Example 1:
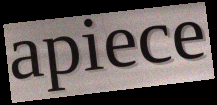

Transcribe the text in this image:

apiece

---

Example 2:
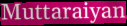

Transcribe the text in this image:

Muttaraiyan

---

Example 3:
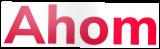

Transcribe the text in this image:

Ahom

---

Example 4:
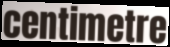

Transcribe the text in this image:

centimetre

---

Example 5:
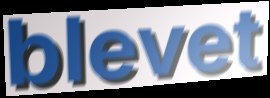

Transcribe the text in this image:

blevet